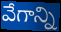
వేగాన్ని